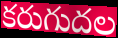
కరుగుదల